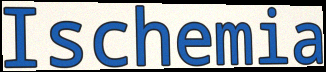
Ischemia